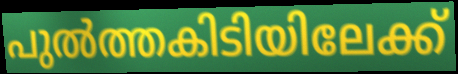
പുൽത്തകിടിയിലേക്ക്